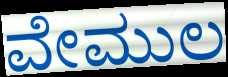
ವೇಮುಲ